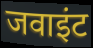
जवाइंट